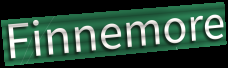
Finnemore